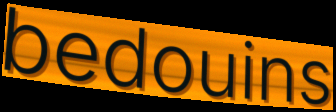
bedouins